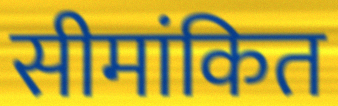
सीमांकित